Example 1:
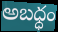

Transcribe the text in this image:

అబధ్ధం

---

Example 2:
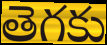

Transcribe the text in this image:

తెగకు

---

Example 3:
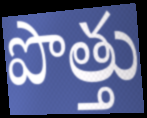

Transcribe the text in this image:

పొత్తు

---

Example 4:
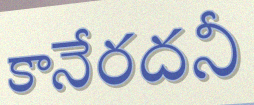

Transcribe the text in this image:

కానేరదనీ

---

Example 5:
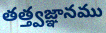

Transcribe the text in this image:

తత్త్వజ్ఞానము